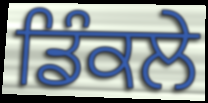
ਡਿੰਕਲੇ